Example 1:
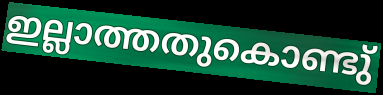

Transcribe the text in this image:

ഇല്ലാത്തതുകൊണ്ടു്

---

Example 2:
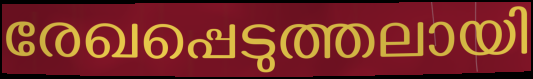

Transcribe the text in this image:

രേഖപ്പെടുത്തലായി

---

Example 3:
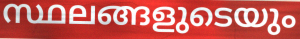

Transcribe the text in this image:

സ്ഥലങ്ങളുടെയും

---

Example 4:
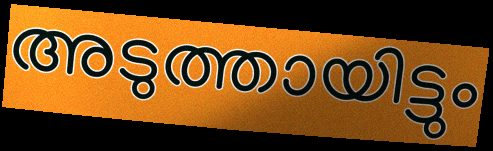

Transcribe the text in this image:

അടുത്തായിട്ടും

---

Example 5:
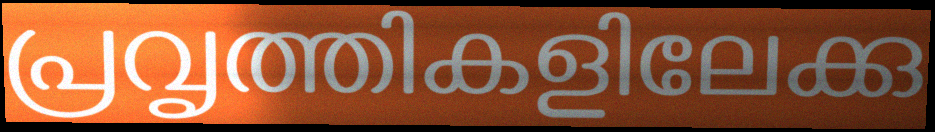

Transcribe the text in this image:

പ്രവൃത്തികളിലേക്കു